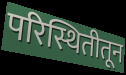
परिस्थितीतून